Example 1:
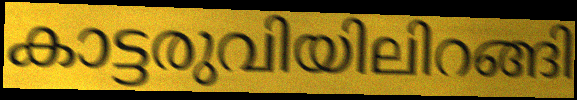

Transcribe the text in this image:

കാട്ടരുവിയിലിറങ്ങി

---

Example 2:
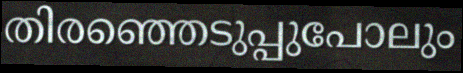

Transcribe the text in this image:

തിരഞ്ഞെടുപ്പുപോലും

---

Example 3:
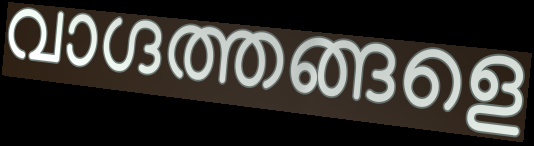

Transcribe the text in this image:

വാഗ്ദത്തങ്ങളെ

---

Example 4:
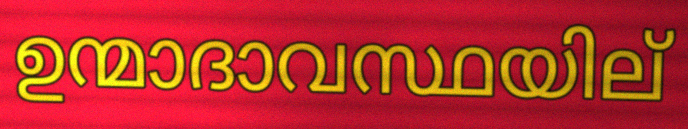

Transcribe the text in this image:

ഉന്മാദാവസ്ഥയില്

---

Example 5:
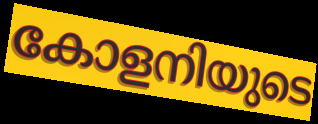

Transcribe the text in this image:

കോളനിയുടെ